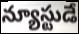
న్యూస్టుడే